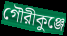
গৌরীকুঞ্জে